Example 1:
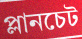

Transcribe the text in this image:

প্লানচেট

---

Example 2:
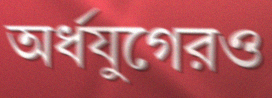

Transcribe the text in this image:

অর্ধযুগেরও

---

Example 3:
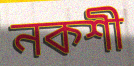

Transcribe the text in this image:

নকশী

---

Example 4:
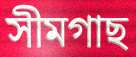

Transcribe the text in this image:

সীমগাছ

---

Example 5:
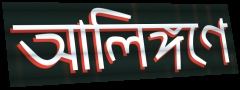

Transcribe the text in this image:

আলিঙ্গণে